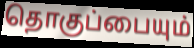
தொகுப்பையும்